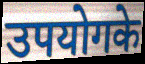
उपयोगके